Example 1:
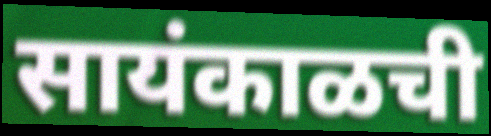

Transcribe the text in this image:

सायंकाळची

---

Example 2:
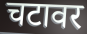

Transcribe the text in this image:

चटावर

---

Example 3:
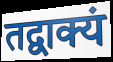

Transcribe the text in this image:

तद्वाक्यं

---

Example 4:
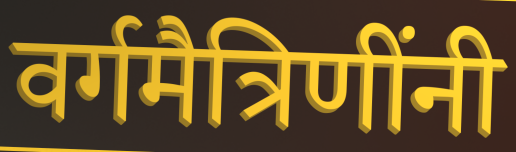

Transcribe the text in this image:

वर्गमैत्रिणींनी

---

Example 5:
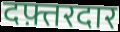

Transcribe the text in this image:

दफ़्तरदार